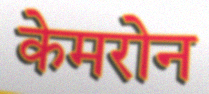
केमरोन